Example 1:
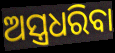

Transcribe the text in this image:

ଅସ୍ତ୍ରଧରିବା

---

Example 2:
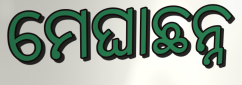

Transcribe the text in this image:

ମେଘାଛନ୍ନ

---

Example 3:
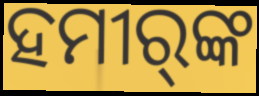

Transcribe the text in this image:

ହମୀର୍‍ଙ୍କ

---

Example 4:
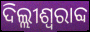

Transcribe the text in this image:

ଦିଲ୍ଲୀଶ୍ୱରାବ୍ଦ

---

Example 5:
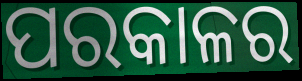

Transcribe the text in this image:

ପରକାଳର